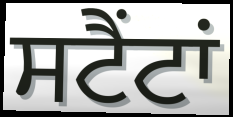
ਸਟੈਂਟਾਂ